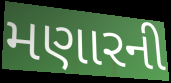
મણારની